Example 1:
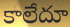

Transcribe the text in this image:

కాలేదూ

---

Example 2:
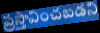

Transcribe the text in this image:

ప్రస్తావించబడని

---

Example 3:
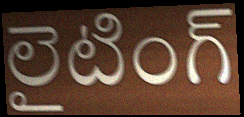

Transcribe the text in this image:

లైటింగ్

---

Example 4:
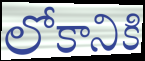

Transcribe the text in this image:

లోకానికి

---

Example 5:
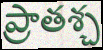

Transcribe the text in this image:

ప్రాతశ్చ